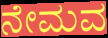
ನೇಮವ